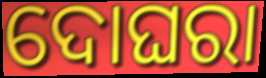
ଦୋଘରା